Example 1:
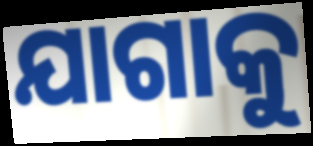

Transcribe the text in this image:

ଯାଗାକୁ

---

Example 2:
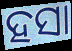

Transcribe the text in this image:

ହସା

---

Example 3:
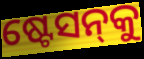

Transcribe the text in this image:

ଷ୍ଟେସନ୍‍କୁ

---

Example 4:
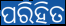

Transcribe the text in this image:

ପରିହିତ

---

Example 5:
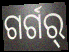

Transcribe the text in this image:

ଗର୍ଗର୍